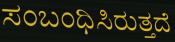
ಸಂಬಂಧಿಸಿರುತ್ತದೆ